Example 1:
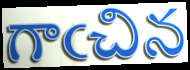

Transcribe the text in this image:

గాఁచిన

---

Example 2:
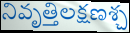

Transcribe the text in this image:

నివృత్తిలక్షణశ్చ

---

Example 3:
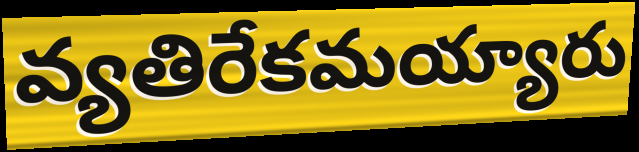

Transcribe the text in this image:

వ్యతిరేకమయ్యారు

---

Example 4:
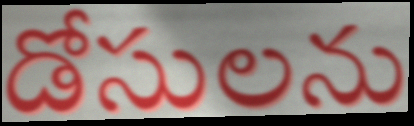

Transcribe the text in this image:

డోసులను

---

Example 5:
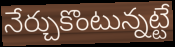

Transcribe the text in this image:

నేర్చుకొంటున్నట్టే